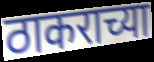
ठाकराच्या